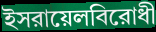
ইসরায়েলবিরোধী